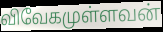
விவேகமுள்ளவன்